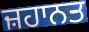
ਜ਼ਹਾਨਤ